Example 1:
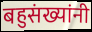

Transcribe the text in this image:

बहुसंख्यांनी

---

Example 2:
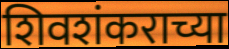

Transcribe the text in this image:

शिवशंकराच्या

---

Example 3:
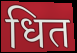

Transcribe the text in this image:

धित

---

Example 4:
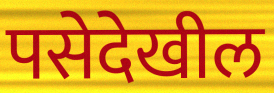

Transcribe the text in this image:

पसेदेखील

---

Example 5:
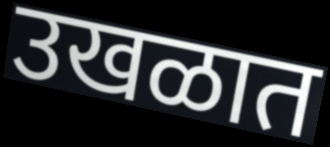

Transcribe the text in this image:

उखळात